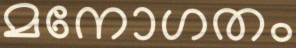
മനോഗതം